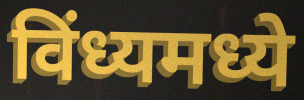
विंध्यमध्ये